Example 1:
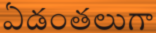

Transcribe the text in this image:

ఏడంతలుగా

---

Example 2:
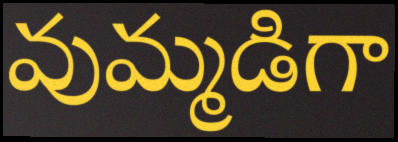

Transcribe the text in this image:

వుమ్మడిగా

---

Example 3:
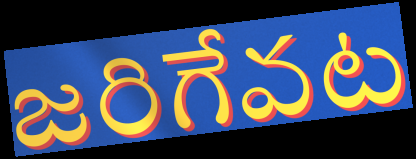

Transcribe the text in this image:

జరిగేవట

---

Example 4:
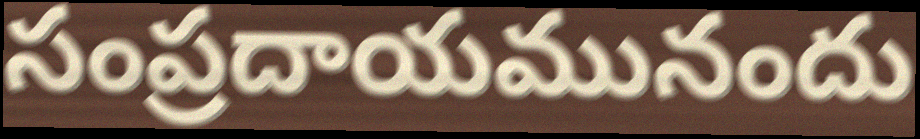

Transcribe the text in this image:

సంప్రదాయమునందు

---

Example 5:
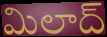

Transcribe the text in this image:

మిలాద్